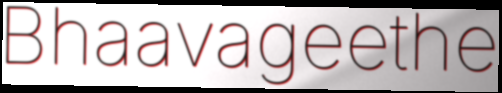
Bhaavageethe